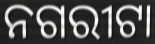
ନଗରୀଟା